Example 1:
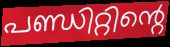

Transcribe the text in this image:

പണ്ഡിറ്റിന്റെ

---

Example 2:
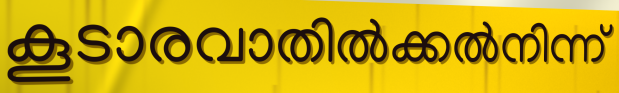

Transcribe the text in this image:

കൂടാരവാതിൽക്കൽനിന്ന്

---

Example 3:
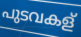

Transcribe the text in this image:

പുടവകള്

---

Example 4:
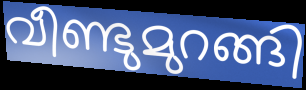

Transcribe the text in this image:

വീണ്ടുമുറങ്ങി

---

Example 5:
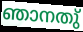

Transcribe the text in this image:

ഞാനതു്